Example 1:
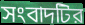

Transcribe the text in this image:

সংবাদটির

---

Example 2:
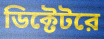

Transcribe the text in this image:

ডিক্টেটরে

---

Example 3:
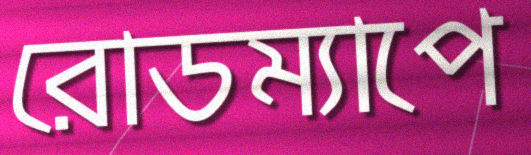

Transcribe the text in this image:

রোডম্যাপে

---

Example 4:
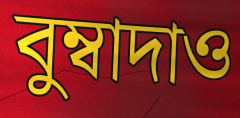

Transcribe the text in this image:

বুম্বাদাও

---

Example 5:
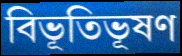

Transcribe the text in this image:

বিভূতিভূষণ